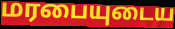
மரபையுடைய